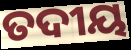
ତଦୀୟ